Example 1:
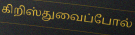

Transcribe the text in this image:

கிறிஸ்துவைப்போல்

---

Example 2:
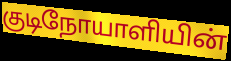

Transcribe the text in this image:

குடிநோயாளியின்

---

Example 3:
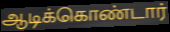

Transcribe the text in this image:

ஆடிக்கொண்டார்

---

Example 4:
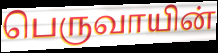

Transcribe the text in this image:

பெருவாயின்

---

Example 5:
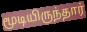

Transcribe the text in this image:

மூடியிருந்தார்